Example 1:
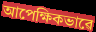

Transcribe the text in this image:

আপেক্ষিকভাৱে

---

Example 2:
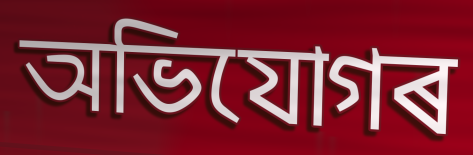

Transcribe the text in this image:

অভিযোগৰ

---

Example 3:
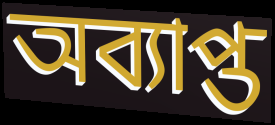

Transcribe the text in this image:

অব্যাপ্ত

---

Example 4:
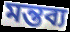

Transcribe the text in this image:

মন্তব্য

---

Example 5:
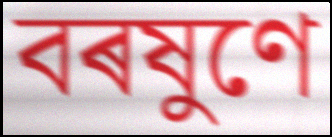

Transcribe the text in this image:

বৰষুণে